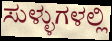
ಸುಳ್ಳುಗಳಲ್ಲಿ